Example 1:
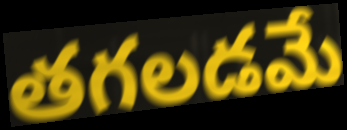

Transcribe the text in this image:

తగలడమే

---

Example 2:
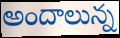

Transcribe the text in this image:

అందాలున్న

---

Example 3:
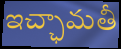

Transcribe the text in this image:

ఇచ్ఛామతీ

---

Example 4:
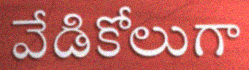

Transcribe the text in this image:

వేడికోలుగా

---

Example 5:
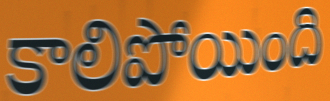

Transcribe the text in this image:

కాలిపోయింది